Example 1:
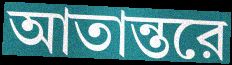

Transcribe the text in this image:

আতান্তরে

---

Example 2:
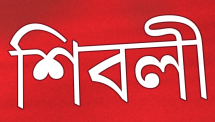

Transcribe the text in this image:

শিবলী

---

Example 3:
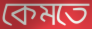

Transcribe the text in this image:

কেমতে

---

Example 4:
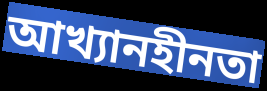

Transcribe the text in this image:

আখ্যানহীনতা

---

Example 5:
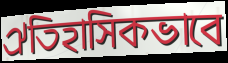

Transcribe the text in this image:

ঐতিহাসিকভাবে